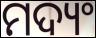
ମଦ୍ୟଂ